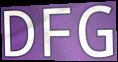
DFG